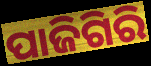
ପାଜିଗିରି